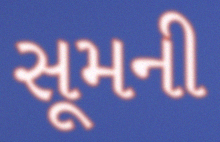
સૂમની